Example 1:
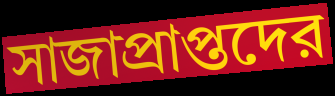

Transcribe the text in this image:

সাজাপ্রাপ্তদের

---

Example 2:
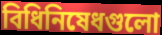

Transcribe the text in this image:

বিধিনিষেধগুলো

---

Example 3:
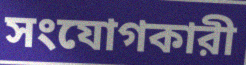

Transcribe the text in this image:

সংযোগকারী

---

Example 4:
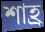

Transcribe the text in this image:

শাহ্র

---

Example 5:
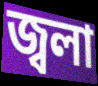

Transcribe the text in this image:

জ্বলা